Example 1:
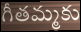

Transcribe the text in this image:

గీతమ్మకు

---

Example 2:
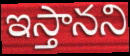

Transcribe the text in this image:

ఇస్తానని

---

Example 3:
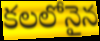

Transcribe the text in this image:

కలలోనైన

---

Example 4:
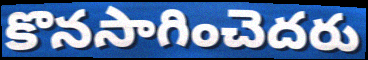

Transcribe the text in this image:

కొనసాగించెదరు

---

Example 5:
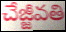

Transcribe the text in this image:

చేజ్జీవతి